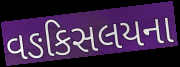
વઙકિસલયના